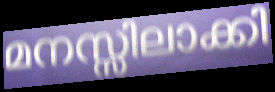
മനസ്സിലാക്കി